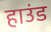
हाउंड